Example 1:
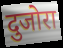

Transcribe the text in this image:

दुजोरा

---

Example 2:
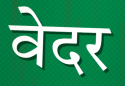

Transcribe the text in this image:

वेदर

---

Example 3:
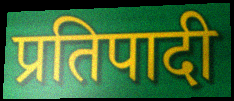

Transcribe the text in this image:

प्रतिपादी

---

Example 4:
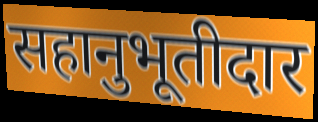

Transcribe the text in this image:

सहानुभूतीदार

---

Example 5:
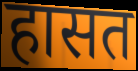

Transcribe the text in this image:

हासत